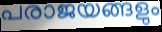
പരാജയങ്ങളും